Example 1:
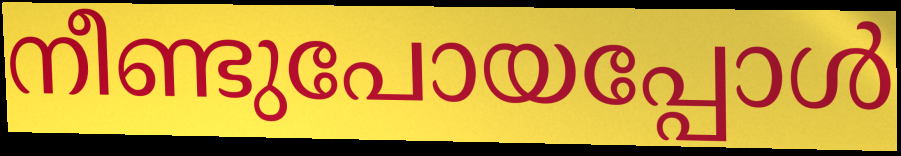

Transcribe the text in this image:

നീണ്ടുപോയപ്പോൾ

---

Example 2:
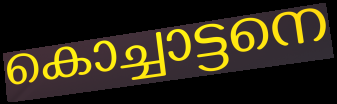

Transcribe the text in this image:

കൊച്ചാട്ടനെ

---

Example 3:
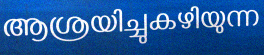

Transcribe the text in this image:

ആശ്രയിച്ചുകഴിയുന്ന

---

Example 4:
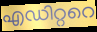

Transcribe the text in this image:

എഡിറ്ററെ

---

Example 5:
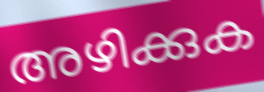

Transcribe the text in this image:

അഴിക്കുക